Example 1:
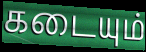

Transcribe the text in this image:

கடையும்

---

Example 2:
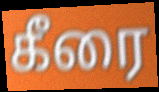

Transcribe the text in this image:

கீரை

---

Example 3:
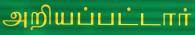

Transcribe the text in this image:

அறியப்பட்டார்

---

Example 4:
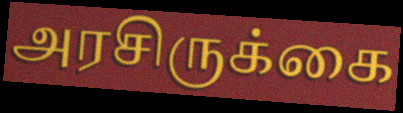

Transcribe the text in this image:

அரசிருக்கை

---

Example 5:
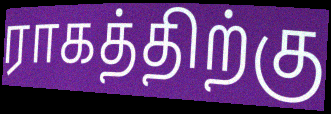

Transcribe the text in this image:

ராகத்திற்கு